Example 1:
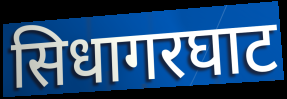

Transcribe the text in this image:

सिधागरघाट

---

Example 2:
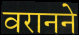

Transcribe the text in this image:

वरानने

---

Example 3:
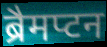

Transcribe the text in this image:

ब्रैमप्टन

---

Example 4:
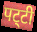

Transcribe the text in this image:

पट्‌टी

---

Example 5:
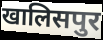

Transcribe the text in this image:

खालिसपुर